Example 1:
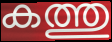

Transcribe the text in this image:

കത്തു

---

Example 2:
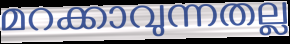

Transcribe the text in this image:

മറക്കാവുന്നതല്ല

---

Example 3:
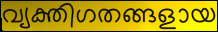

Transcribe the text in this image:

വ്യക്തിഗതങ്ങളായ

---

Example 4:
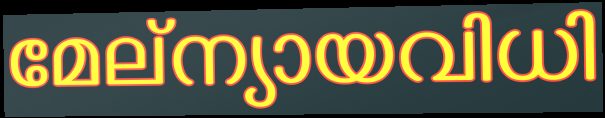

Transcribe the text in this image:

മേല്ന്യായവിധി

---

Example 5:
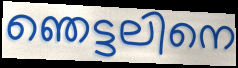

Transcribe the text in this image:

ഞെട്ടലിനെ